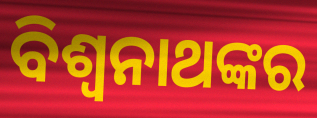
ବିଶ୍ୱନାଥଙ୍କର